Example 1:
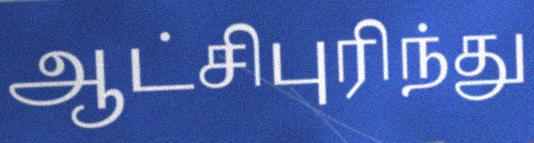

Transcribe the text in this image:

ஆட்சிபுரிந்து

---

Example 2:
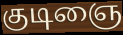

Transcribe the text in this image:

குடிஞை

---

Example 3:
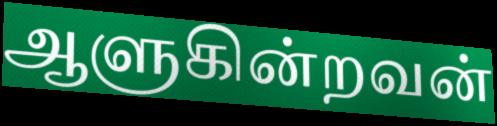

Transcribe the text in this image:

ஆளுகின்றவன்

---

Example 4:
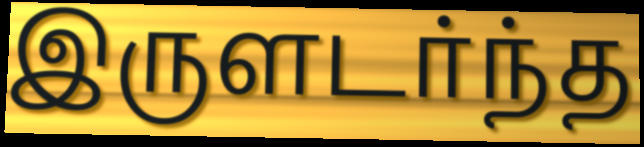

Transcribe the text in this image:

இருளடர்ந்த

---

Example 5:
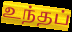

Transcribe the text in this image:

உந்தப்